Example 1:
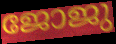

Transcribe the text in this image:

ജോജു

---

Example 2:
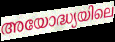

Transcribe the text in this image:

അയോദ്ധ്യയിലെ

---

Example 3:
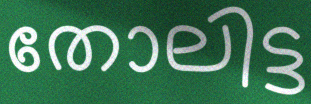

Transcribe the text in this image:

തോലിട്ട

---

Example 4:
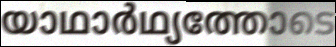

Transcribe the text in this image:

യാഥാർഥ്യത്തോടെ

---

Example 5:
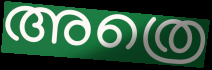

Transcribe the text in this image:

അത്രെ